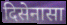
दिसेनासा